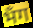
भँग